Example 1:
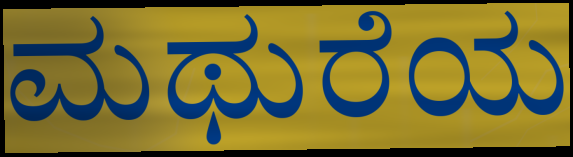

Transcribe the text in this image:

ಮಥುರೆಯ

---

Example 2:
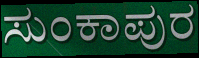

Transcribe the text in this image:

ಸುಂಕಾಪುರ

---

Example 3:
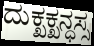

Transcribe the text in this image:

ದುಕ್ಖಕ್ಖನ್ಧಸ್ಸ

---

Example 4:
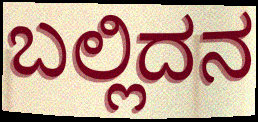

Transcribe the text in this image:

ಬಲ್ಲಿದನ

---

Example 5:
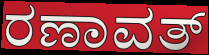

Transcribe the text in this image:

ರಣಾವತ್